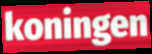
koningen